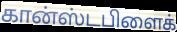
கான்ஸ்டபிளைக்